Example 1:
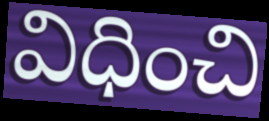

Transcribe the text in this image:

విధించి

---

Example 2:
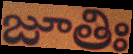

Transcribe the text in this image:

జూతిః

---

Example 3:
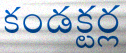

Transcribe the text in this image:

కండక్టర్ల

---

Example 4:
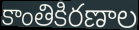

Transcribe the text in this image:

కాంతికిరణాల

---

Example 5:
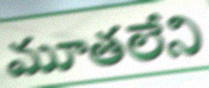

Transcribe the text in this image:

మూతలేని